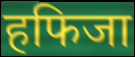
हफिजा